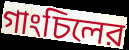
গাংচিলের